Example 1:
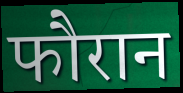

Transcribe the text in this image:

फौरान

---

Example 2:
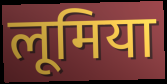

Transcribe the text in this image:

लूमिया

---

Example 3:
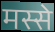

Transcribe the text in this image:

मस्से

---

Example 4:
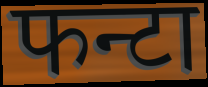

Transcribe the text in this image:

फन्टा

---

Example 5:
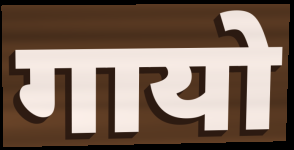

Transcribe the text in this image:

गायो